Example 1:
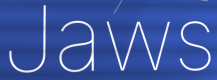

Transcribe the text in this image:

Jaws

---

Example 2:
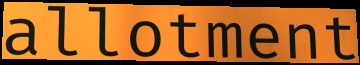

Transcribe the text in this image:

allotment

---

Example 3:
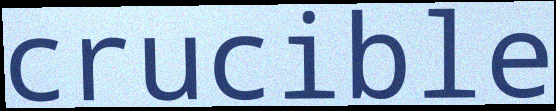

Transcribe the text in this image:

crucible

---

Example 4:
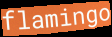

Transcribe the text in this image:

flamingo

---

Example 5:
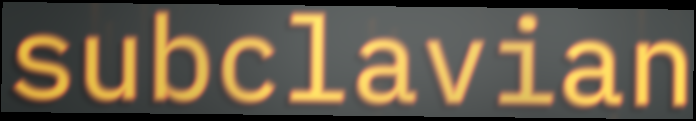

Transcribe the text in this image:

subclavian